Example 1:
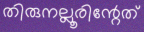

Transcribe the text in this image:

തിരുനല്ലൂരിന്റേത്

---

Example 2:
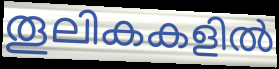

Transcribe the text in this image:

തൂലികകളിൽ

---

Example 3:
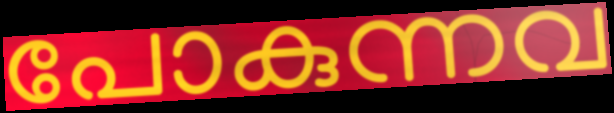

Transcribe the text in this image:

പോകുന്നവ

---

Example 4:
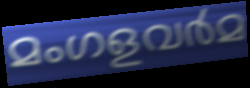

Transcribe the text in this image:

മംഗളവർമ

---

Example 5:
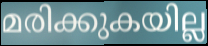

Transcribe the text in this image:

മരിക്കുകയില്ല